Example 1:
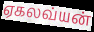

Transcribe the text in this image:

ஏகலவ்யன்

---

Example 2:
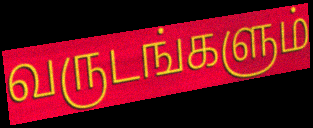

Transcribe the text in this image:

வருடங்களும்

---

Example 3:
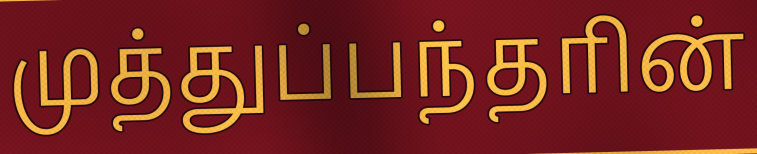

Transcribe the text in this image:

முத்துப்பந்தரின்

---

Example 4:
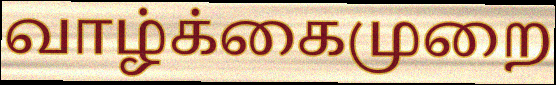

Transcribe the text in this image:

வாழ்க்கைமுறை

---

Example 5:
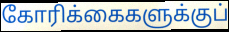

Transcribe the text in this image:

கோரிக்கைகளுக்குப்